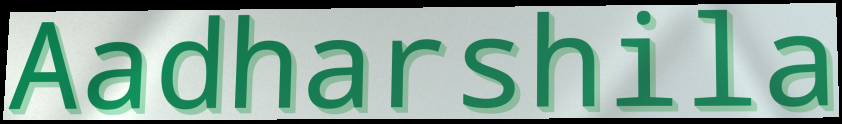
Aadharshila